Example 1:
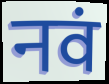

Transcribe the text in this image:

नवं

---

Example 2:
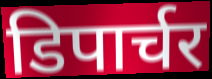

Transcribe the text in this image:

डिपार्चर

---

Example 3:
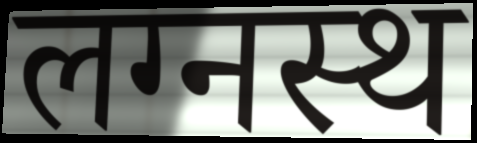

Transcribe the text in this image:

लग्नस्थ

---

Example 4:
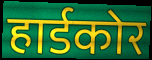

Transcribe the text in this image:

हार्डकोर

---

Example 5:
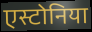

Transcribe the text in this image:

एस्‍टोनिया